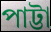
পাট্টা